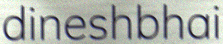
dineshbhai